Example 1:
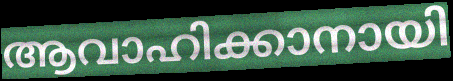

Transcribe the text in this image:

ആവാഹിക്കാനായി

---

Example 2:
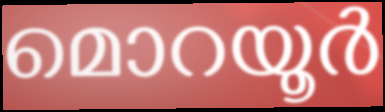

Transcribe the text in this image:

മൊറയൂർ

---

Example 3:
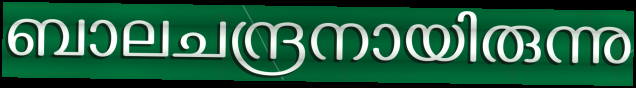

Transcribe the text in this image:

ബാലചന്ദ്രനായിരുന്നു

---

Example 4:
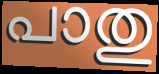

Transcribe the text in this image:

പാതു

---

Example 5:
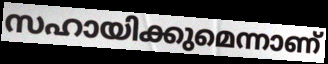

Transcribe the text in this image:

സഹായിക്കുമെന്നാണ്